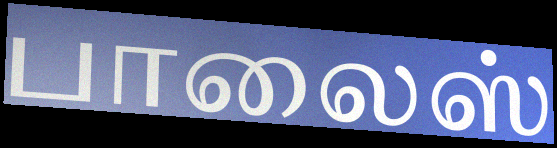
பாலைஸ்